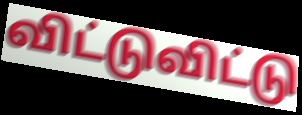
விட்டுவிட்டு